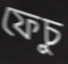
ফেচু